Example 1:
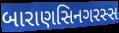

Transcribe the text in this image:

બારાણસિનગરસ્સ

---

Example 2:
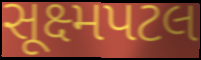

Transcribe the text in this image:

સૂક્ષ્મપટલ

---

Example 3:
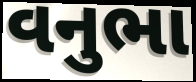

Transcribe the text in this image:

વનુભા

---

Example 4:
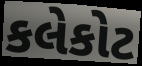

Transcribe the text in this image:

કલેકોટ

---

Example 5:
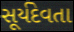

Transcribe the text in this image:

સૂર્યદેવતા